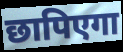
छापिएगा